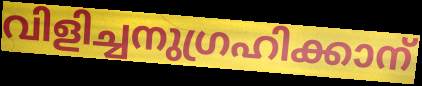
വിളിച്ചനുഗ്രഹിക്കാന്